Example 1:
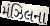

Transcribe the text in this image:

મંઝિલના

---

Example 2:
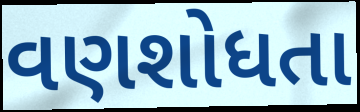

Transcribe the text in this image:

વણશોધતા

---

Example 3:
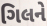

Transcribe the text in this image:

ગિલને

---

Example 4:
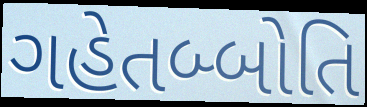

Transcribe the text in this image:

ગહેતબ્બોતિ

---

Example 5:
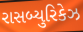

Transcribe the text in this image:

રાસબ્યુરિકેઝ